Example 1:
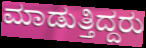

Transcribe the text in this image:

ಮಾಡುತ್ತಿದ್ದರು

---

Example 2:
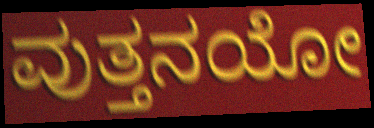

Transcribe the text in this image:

ವುತ್ತನಯೋ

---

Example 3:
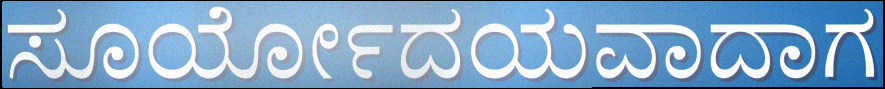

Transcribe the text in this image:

ಸೂರ್ಯೋದಯವಾದಾಗ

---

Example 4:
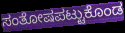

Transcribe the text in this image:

ಸಂತೋಷಪಟ್ಟುಕೊಂಡ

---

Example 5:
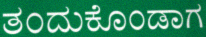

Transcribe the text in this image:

ತಂದುಕೊಂಡಾಗ